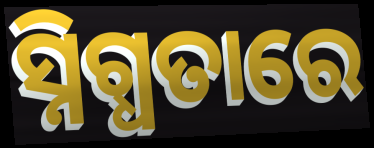
ସ୍ନିଗ୍ଧତାରେ